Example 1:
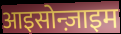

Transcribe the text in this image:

आइसोन्ज़ाइम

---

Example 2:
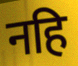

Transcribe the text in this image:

नहि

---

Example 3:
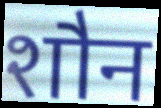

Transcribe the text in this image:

शौन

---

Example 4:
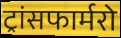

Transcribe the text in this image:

ट्रांसफार्मरो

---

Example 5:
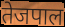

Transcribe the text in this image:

तेजपाल